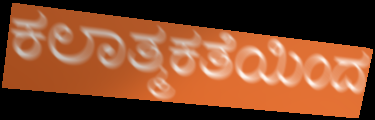
ಕಲಾತ್ಮಕತೆಯಿಂದ